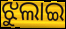
ଝୁଲାଇ